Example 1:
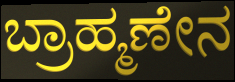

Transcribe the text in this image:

ಬ್ರಾಹ್ಮಣೇನ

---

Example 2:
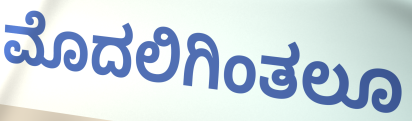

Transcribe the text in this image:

ಮೊದಲಿಗಿಂತಲೂ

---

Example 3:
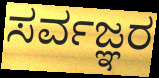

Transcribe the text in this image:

ಸರ್ವಜ್ಞರ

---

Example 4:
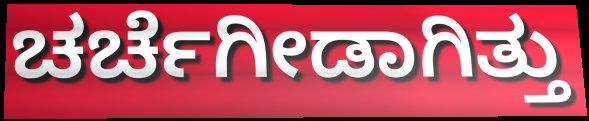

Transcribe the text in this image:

ಚರ್ಚೆಗೀಡಾಗಿತ್ತು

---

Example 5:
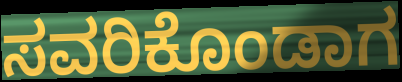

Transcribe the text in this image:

ಸವರಿಕೊಂಡಾಗ